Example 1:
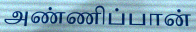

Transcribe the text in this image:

அண்ணிப்பான்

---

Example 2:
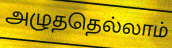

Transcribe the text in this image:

அழுததெல்லாம்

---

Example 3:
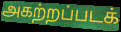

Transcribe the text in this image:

அகற்றப்படக்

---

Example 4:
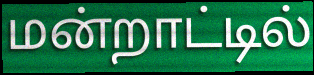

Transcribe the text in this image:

மன்றாட்டில்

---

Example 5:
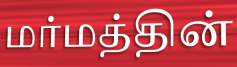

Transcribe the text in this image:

மர்மத்தின்